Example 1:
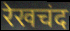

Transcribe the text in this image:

रेखचंद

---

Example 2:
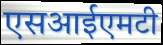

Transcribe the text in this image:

एसआईएमटी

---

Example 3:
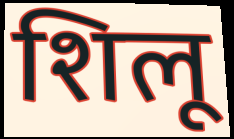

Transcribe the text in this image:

शिलू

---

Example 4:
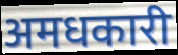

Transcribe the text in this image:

अमधकारी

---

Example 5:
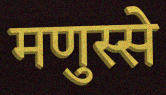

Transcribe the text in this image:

मणुस्से